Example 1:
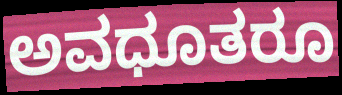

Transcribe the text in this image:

ಅವಧೂತರೂ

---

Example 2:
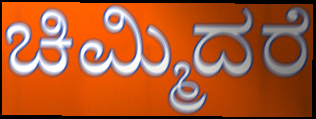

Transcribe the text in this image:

ಚಿಮ್ಮಿದರೆ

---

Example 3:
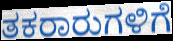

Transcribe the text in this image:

ತಕರಾರುಗಳಿಗೆ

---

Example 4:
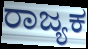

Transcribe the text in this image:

ರಾಜ್ಯಕ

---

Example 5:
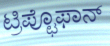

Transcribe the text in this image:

ಟ್ರಿಪ್ಟೊಫಾನ್